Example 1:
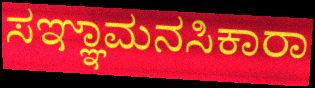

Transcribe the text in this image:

ಸಞ್ಞಾಮನಸಿಕಾರಾ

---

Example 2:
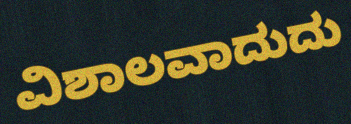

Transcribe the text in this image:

ವಿಶಾಲವಾದುದು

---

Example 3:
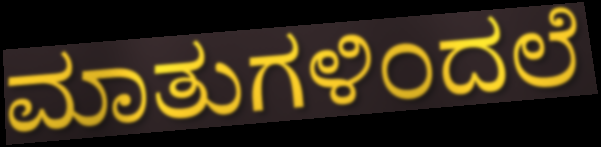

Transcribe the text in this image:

ಮಾತುಗಳಿಂದಲೆ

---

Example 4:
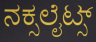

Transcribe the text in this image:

ನಕ್ಸಲೈಟ್ಸ್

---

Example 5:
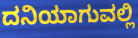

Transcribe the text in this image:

ದನಿಯಾಗುವಲ್ಲಿ